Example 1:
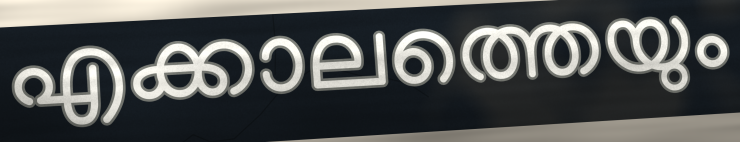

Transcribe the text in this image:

എക്കാലത്തെയും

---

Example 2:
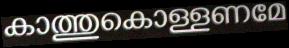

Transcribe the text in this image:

കാത്തുകൊള്ളണമേ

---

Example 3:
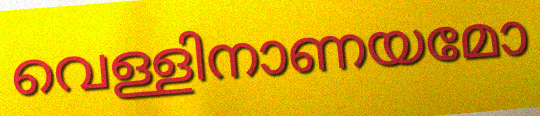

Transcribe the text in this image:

വെള്ളിനാണയമോ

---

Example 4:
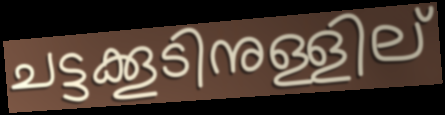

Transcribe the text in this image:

ചട്ടക്കൂടിനുള്ളില്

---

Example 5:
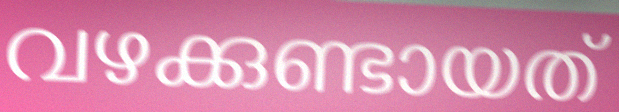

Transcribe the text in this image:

വഴക്കുണ്ടായത്